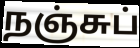
நஞ்சுப்